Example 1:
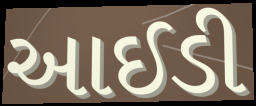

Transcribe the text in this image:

આઈડી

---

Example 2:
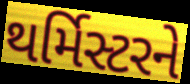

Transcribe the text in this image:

થર્મિસ્ટરને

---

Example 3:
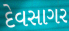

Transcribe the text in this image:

દેવસાગર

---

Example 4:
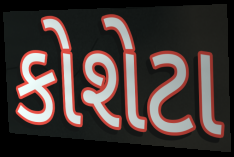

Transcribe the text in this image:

કોશેટા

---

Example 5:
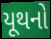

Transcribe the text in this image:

યૂથનો